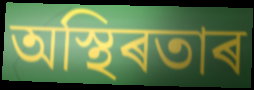
অস্থিৰতাৰ